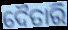
ଦୈତାରି